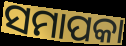
ସମାପକା